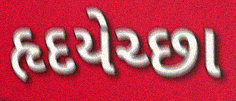
હૃદયેચ્છા